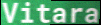
Vitara